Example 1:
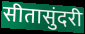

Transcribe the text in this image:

सीतासुंदरी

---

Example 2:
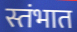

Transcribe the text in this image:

स्तंभात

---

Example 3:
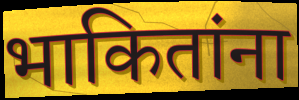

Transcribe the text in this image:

भाकितांना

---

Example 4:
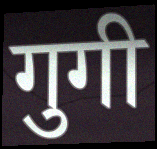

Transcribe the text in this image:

गुगी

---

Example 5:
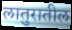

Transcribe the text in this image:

लातुरातील